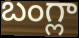
బంగ్లా